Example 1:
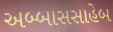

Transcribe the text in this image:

અબ્બાસસાહેબ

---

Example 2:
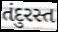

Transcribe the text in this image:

તંદુરસ્ત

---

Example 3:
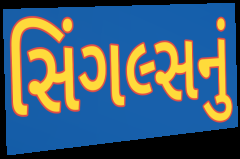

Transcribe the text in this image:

સિંગલ્સનું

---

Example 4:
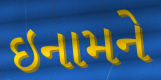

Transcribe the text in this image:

ઇનામને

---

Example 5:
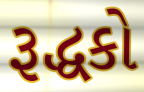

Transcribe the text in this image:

રૂદ્ધકો